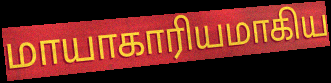
மாயாகாரியமாகிய